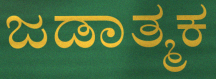
ಜಡಾತ್ಮಕ